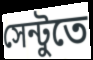
সেন্টুতে